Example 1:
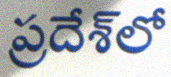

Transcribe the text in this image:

ప్రదేశ్‌లో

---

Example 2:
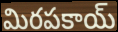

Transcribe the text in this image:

మిరపకాయ్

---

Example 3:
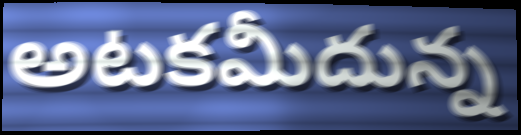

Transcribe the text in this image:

అటకమీదున్న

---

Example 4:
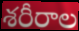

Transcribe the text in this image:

శరీరాల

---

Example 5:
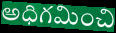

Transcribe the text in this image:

అధిగమించి